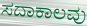
ಸದಾಕಾಲವು